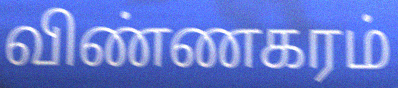
விண்ணகரம்